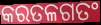
କରତଳଗତଂ